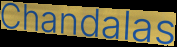
Chandalas